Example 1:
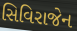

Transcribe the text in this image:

સિવિરાજેન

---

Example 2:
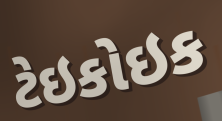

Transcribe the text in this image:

ટેઇકોઇક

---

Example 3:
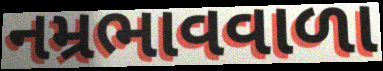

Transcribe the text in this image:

નમ્રભાવવાળા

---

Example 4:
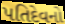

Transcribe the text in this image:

પતિદેવનો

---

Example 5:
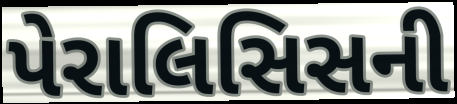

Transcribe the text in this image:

પેરાલિસિસની